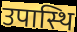
उपास्थि